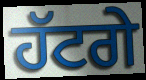
ਹੱਟਗੇ